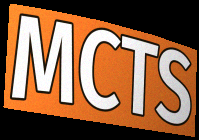
MCTS